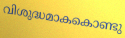
വിശുദ്ധമാകകൊണ്ടു